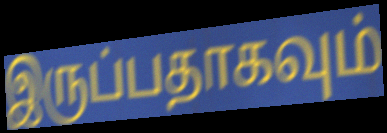
இருப்பதாகவும்